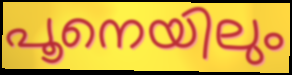
പൂനെയിലും